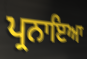
ਪ੍ਰਨਾਇਆ